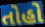
તોહો